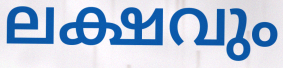
ലക്ഷവും